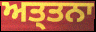
ਅਤ੍ਤਨਾ